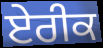
ਏਰੀਕ